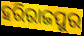
ହରିରାଜପୁର